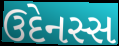
ઉદેનસ્સ